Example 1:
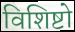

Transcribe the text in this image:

विशिष्टो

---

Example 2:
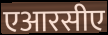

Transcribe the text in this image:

एआरसीए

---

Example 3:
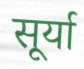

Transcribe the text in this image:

सूर्या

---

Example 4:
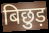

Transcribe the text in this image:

बिछुड़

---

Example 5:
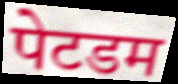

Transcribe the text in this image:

पेटडम